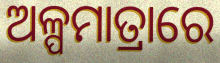
ଅଳ୍ପମାତ୍ରାରେ